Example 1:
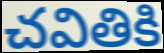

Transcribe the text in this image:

చవితికి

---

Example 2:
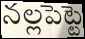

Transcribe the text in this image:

నల్లపెట్టె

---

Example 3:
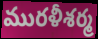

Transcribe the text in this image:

మురళీశర్మ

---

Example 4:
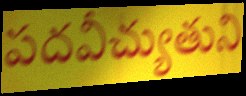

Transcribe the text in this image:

పదవీచ్యుతుని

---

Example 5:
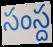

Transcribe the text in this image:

సంస్ద